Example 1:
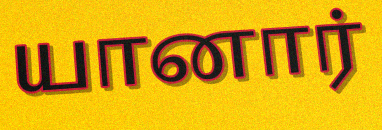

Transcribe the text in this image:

யானார்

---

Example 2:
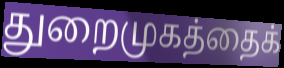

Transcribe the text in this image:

துறைமுகத்தைக்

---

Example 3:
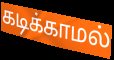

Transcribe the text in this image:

கடிக்காமல்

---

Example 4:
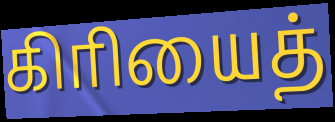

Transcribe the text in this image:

கிரியைத்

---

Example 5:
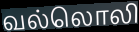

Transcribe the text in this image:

வல்லொலி